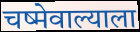
चष्मेवाल्याला